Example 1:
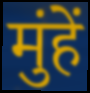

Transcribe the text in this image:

मुंहें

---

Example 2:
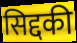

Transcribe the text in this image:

सिद्दकी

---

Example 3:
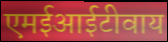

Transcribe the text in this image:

एमईआईटीवाय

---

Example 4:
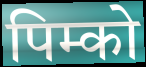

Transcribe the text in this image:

पिम्को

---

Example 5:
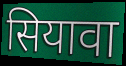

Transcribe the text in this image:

सियावा